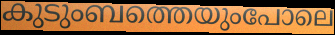
കുടുംബത്തെയുംപോലെ